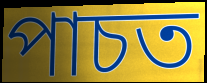
পাচত